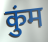
कुंम